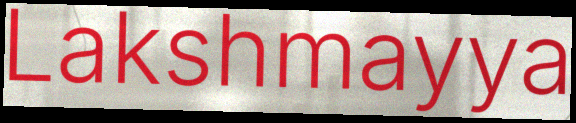
Lakshmayya